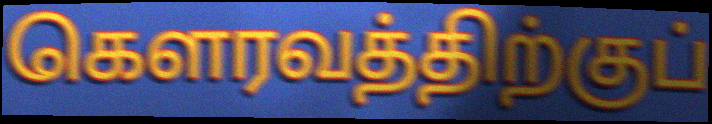
கௌரவத்திற்குப்